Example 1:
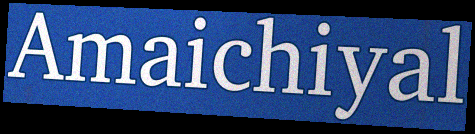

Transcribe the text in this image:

Amaichiyal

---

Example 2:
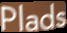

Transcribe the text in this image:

Plads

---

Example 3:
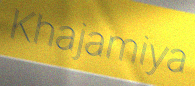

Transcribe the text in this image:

Khajamiya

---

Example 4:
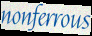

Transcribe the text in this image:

nonferrous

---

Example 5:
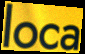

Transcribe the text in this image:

loca